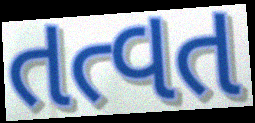
તત્વત